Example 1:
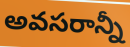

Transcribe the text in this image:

అవసరాన్నీ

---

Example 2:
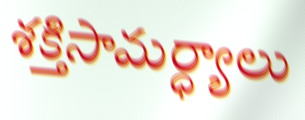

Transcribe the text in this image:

శక్తిసామర్ధ్యాలు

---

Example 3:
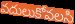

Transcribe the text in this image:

వదులుకోవలసి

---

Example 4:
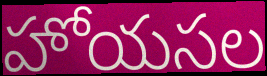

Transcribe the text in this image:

హోయసల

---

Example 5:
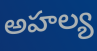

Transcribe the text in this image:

అహల్య